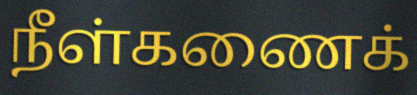
நீள்கணைக்